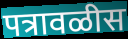
पत्रावळीस